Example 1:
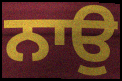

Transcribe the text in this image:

ਨਾਉ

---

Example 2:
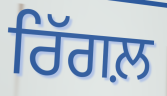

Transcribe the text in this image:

ਰਿੱਗਲ਼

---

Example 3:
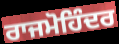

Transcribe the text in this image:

ਰਾਜਮੋਹਿੰਦਰ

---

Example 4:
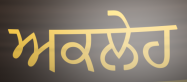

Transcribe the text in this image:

ਅਕਲੇਹ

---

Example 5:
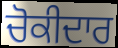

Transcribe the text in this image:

ਚੋਕੀਦਾਰ